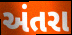
અંતરા